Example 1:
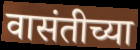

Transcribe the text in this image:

वासंतीच्या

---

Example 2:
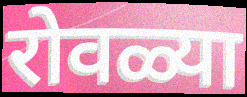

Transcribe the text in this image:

रोवळ्या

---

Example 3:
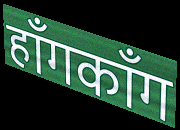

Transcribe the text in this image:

हाँगकाँग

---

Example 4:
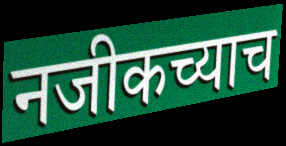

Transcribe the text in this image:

नजीकच्याच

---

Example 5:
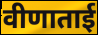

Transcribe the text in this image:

वीणाताई